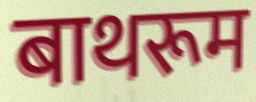
बाथरूम